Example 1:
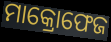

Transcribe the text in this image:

ମାକ୍ରୋଫେଜ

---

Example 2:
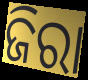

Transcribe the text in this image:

ଜିରା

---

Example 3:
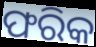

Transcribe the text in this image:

ଫରିକ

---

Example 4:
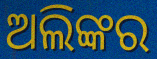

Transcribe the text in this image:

ଅଲିଙ୍କର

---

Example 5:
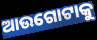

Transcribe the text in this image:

ଆଉଗୋଟାକୁ